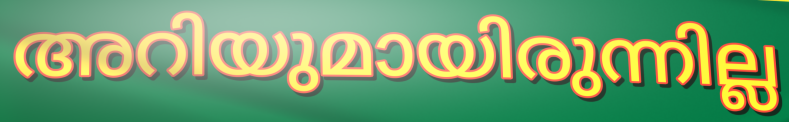
അറിയുമായിരുന്നില്ല